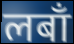
लबाँ